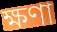
ক্ষণা